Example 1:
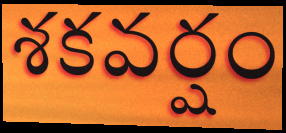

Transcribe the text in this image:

శకవర్షం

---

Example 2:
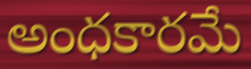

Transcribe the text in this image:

అంధకారమే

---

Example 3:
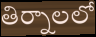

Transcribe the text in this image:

తిర్నాలలో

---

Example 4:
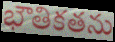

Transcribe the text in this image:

భౌతికతను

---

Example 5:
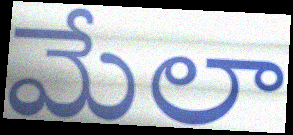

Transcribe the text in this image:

మేలా